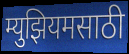
म्युझियमसाठी